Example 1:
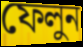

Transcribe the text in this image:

ফেলুন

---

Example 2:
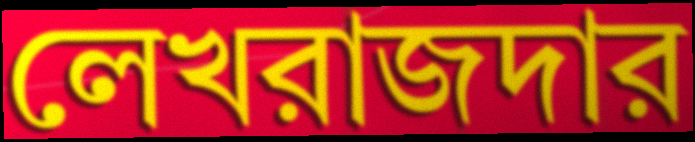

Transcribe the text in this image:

লেখরাজদার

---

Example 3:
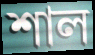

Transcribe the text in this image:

শাল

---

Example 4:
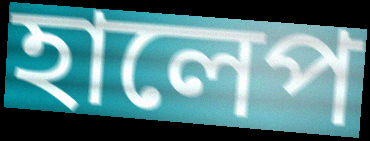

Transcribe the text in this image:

হালেপ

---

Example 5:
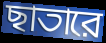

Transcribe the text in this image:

ছাতারে